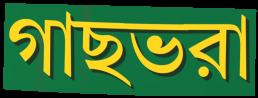
গাছভরা